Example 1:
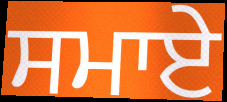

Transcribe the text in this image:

ਸਮਾਏ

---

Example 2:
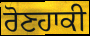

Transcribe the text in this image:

ਰੋਣਹਾਕੀ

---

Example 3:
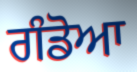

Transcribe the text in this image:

ਗੰਡੋਆ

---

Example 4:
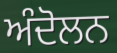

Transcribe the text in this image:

ਅੰਦੋਲਨ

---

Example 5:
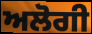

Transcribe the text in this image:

ਅਲੋਗੀ